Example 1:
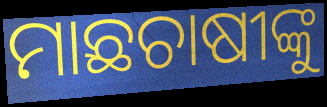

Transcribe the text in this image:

ମାଛଚାଷୀଙ୍କୁ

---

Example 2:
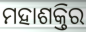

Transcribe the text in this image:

ମହାଶକ୍ତିର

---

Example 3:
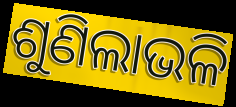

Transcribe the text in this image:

ଶୁଣିଲାଭଳି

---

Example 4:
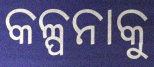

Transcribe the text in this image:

କଳ୍ପନାକୁ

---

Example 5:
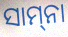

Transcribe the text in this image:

ସାମ୍‍ନା